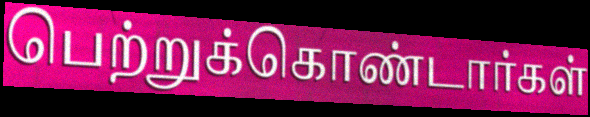
பெற்றுக்கொண்டார்கள்